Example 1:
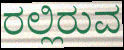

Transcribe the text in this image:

ರಲ್ಲಿರುವ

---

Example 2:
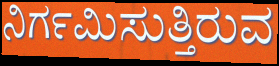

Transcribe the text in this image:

ನಿರ್ಗಮಿಸುತ್ತಿರುವ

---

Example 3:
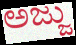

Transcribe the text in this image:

ಅಜ್ಜು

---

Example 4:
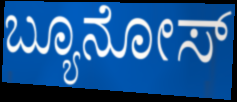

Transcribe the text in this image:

ಬ್ಯೂನೋಸ್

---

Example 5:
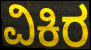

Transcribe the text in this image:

ವಿಕಿರ